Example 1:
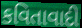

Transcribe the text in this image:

કવિતાવાદી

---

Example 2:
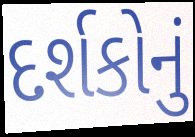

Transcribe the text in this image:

દર્શકોનું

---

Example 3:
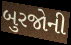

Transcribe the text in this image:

બુરજોની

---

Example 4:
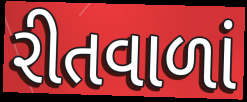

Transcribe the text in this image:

રીતવાળાં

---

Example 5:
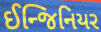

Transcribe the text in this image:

ઈન્જિનિયર